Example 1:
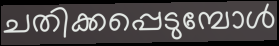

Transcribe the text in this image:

ചതിക്കപ്പെടുമ്പോൾ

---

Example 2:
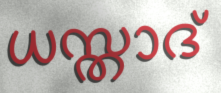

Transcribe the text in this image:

ധസ്താദ്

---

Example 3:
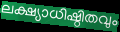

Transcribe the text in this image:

ലക്ഷ്യാധിഷ്ഠിതവും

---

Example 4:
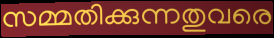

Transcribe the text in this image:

സമ്മതിക്കുന്നതുവരെ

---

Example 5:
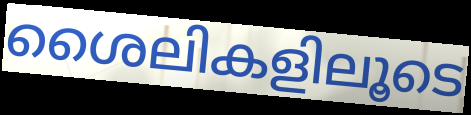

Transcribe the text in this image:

ശൈലികളിലൂടെ